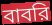
বাবরি